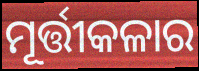
ମୂର୍ତ୍ତୀକଳାର